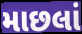
માછલાં